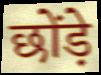
छोंड़े